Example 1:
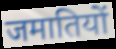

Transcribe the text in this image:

जमातियों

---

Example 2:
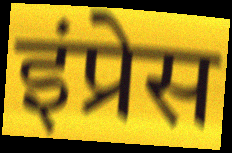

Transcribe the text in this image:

इंप्रेस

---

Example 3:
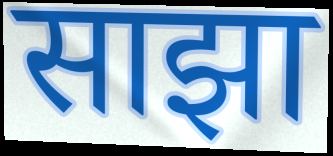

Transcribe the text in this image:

साझा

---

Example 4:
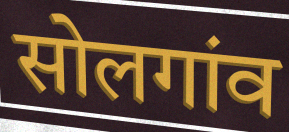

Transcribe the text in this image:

सोलगांव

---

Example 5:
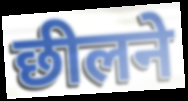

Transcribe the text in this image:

छीलने